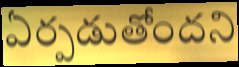
ఏర్పడుతోందని